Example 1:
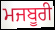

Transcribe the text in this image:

ਮਜਬੂਰੀ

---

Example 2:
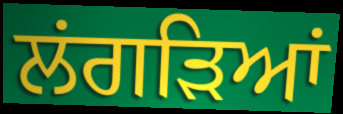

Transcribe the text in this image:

ਲਂਗੜਿਆਂ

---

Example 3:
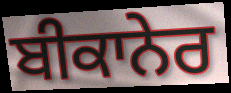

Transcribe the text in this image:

ਬੀਕਾਨੇਰ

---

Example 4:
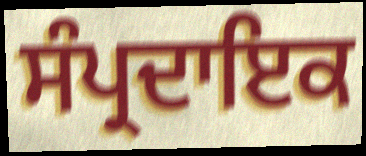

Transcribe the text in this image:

ਸੰਪ੍ਰਦਾਇਕ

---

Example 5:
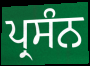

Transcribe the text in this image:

ਪ੍ਰਸੰਨ